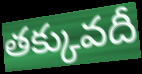
తక్కువదీ